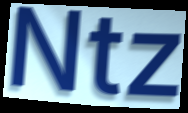
Ntz